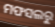
ମଫସଲରୁ